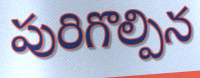
పురిగొల్పిన